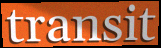
transit